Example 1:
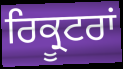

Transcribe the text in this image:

ਰਿਕ੍ਰੂਟਰਾਂ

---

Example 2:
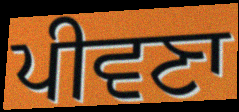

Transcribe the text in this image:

ਪੀਵਣਾ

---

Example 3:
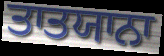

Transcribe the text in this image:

ਤਾਤਯਾਨਾ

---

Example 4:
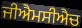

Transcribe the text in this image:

ਜੀਐਮਸੀਐਚ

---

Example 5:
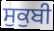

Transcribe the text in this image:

ਸੁਕੁਬੀ